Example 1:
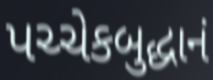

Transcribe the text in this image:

પચ્ચેકબુદ્ધાનં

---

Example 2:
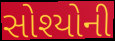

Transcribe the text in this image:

સોશ્યોની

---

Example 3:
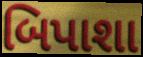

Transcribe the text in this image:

બિપાશા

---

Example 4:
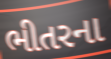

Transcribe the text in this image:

ભીતરના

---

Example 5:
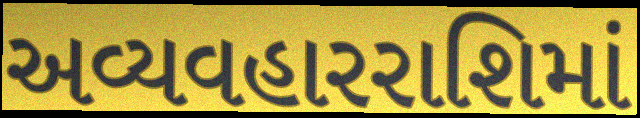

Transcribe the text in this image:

અવ્યવહારરાશિમાં